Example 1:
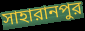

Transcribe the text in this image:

সাহারানপুর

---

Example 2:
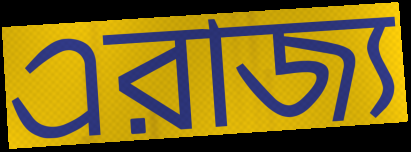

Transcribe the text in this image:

এরাজ্য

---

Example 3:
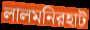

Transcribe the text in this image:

লালমনিরহাট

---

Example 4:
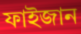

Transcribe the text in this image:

ফাইজান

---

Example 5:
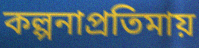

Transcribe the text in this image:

কল্পনাপ্রতিমায়